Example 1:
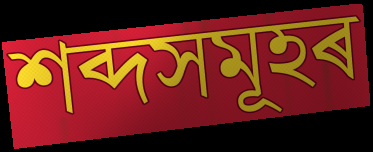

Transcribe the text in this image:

শব্দসমূহৰ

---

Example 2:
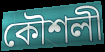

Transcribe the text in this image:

কৌশলী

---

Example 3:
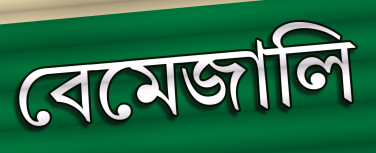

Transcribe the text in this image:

বেমেজালি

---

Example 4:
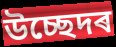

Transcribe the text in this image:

উচ্ছেদৰ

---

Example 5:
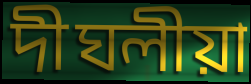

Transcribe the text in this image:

দীঘলীয়া